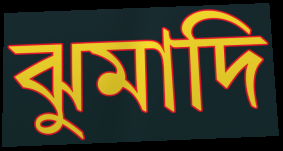
ঝুমাদি